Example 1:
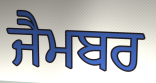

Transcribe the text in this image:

ਜੈਮਬਰ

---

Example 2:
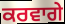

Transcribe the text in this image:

ਕਰਵਾਗੇ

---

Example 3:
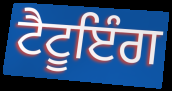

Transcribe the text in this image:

ਟੈਟੂਇੰਗ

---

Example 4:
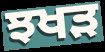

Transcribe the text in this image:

ਝਖੜ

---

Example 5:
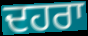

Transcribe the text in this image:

ਦਹਰਾ